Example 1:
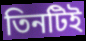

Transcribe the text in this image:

তিনটিই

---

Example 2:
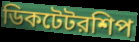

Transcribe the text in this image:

ডিকটেটরশিপ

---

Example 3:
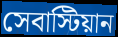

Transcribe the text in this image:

সেবাস্টিয়ান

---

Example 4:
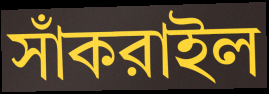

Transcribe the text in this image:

সাঁকরাইল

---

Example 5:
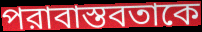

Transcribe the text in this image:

পরাবাস্তবতাকে